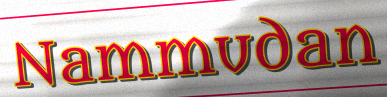
Nammudan